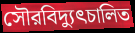
সৌরবিদ্যুৎচালিত